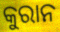
କୁରାନ